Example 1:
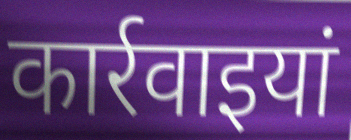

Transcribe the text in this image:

कार्रवाइयां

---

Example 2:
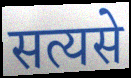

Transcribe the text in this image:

सत्यसे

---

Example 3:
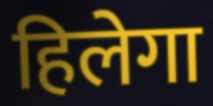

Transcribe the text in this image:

हिलेगा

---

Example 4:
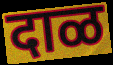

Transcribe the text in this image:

दाळ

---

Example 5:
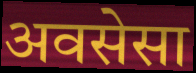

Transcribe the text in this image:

अवसेसा